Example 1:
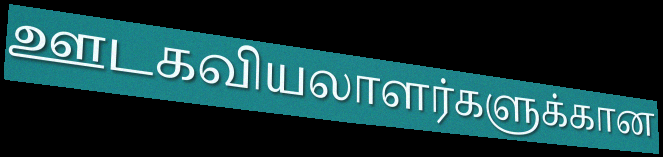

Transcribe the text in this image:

ஊடகவியலாளர்களுக்கான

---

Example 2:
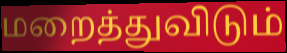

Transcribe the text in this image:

மறைத்துவிடும்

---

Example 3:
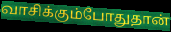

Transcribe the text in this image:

வாசிக்கும்போதுதான்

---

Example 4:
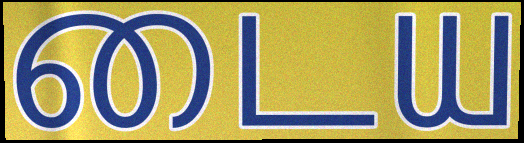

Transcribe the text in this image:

டைய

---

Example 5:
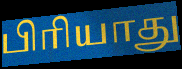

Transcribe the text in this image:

பிரியாது